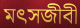
মৎসজীবী